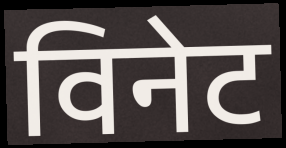
विनेट